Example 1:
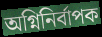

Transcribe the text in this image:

অগ্নিনির্বাপক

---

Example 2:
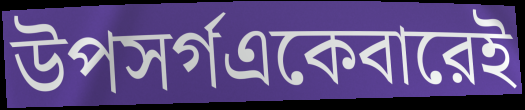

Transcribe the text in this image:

উপসর্গএকেবারেই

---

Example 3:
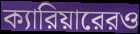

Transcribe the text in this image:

ক্যারিয়ারেরও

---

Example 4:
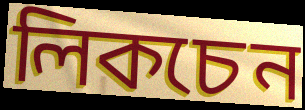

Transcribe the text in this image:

লিকচেন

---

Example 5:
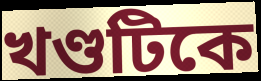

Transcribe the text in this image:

খণ্ডটিকে